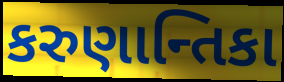
કરુણાન્તિકા